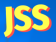
JSS